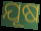
ଯୂଷ